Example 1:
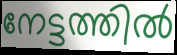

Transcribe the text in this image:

നേട്ടത്തിൽ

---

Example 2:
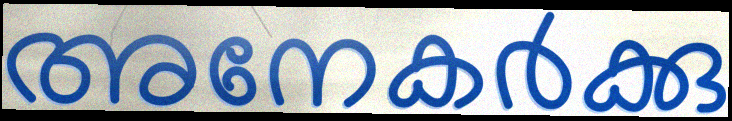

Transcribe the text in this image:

അനേകർക്കു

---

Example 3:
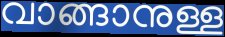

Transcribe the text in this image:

വാങ്ങാനുള്ള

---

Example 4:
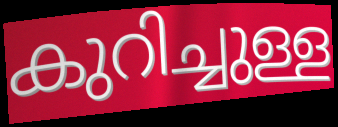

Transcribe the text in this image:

കുറിച്ചുള്ള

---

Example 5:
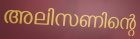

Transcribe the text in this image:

അലിസണിന്റെ